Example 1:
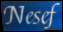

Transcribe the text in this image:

Nesef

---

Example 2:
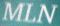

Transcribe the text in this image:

MLN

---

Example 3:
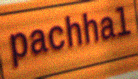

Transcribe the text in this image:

pachhal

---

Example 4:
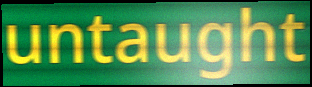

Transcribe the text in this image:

untaught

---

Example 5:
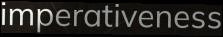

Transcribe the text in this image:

imperativeness